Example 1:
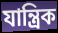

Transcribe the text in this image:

যান্ত্রিক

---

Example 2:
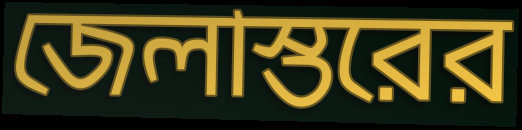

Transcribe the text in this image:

জেলাস্তরের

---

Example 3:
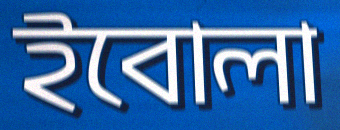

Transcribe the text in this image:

ইবোলা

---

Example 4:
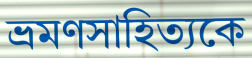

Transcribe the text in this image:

ভ্রমণসাহিত্যকে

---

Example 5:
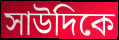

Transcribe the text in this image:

সাউদিকে